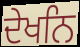
ਦੇਖਨਿ